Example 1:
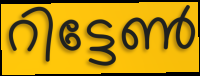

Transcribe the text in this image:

റിട്ടേൺ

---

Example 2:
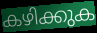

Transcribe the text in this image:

കഴിക്കുക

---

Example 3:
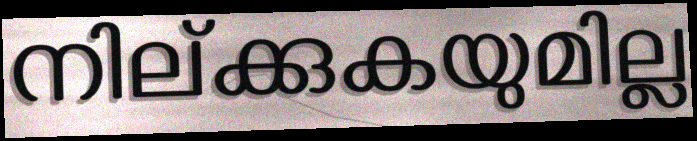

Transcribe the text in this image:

നില്ക്കുകയുമില്ല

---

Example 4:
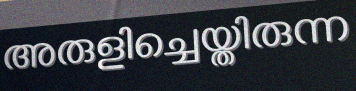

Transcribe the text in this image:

അരുളിച്ചെയ്തിരുന്ന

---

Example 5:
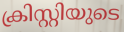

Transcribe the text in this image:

ക്രിസ്റ്റിയുടെ